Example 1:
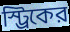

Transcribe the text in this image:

স্ট্রিকের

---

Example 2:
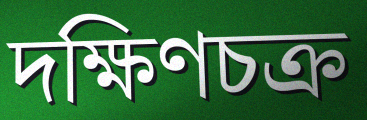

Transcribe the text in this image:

দক্ষিণচক্র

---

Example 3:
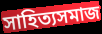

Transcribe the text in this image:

সাহিত্যসমাজ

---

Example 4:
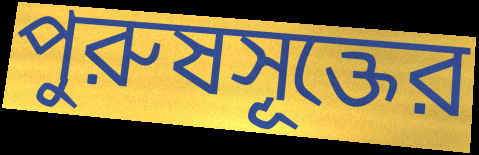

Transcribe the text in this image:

পুরুষসূক্তের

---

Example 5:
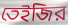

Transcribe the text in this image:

তেইজির